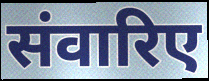
संवारिए